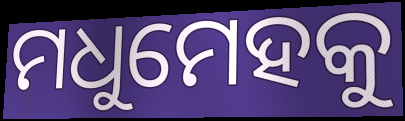
ମଧୁମେହକୁ